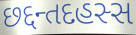
છદ્દન્તદહસ્સ